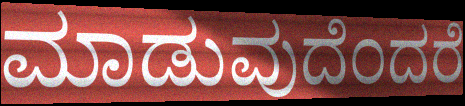
ಮಾಡುವುದೆಂದರೆ